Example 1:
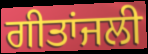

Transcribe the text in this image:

ਗੀਤਾਂਜਲੀ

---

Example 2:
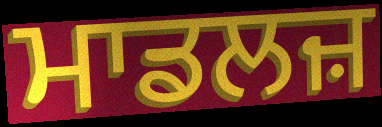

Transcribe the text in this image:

ਮਾਡਲਜ਼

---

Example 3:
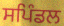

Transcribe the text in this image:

ਸਪਿੰਡਲ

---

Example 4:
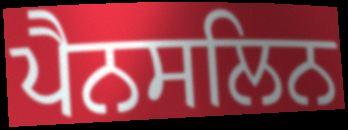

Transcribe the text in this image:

ਪੈਨਸਲਿਨ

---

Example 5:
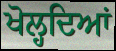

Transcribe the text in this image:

ਖੋਲ੍ਹਦਿਆਂ